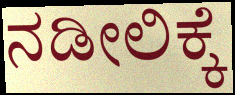
ನಡೀಲಿಕ್ಕೆ